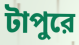
টাপুরে